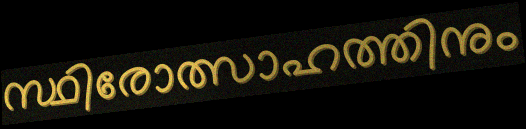
സ്ഥിരോത്സാഹത്തിനും